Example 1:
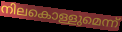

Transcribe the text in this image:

നിലകൊള്ളുമെന്ന്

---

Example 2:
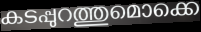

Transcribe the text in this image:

കടപ്പുറത്തുമൊക്കെ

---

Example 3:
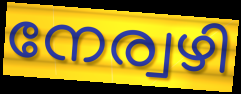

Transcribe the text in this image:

നേര്വഴി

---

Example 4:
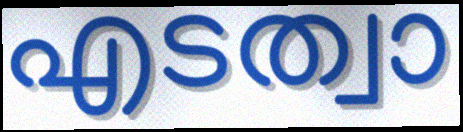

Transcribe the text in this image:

എടത്വാ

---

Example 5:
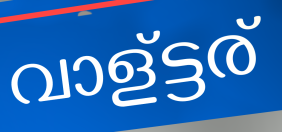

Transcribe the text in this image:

വാള്ട്ടര്